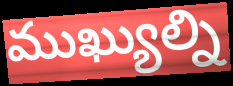
ముఖ్యుల్ని